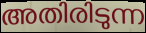
അതിരിടുന്ന